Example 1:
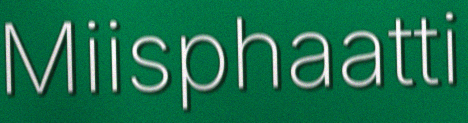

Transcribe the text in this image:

Miisphaatti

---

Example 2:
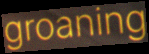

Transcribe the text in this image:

groaning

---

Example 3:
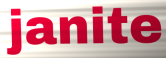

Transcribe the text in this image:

janite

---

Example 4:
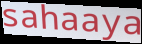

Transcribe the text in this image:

sahaaya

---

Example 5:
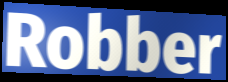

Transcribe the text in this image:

Robber